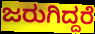
ಜರುಗಿದ್ದರೆ